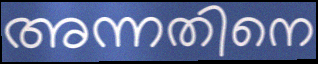
അന്നതിനെ